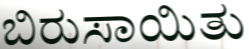
ಬಿರುಸಾಯಿತು